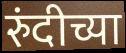
रुंदीच्या